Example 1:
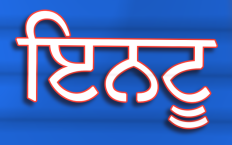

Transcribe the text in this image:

ਇਨਟੂ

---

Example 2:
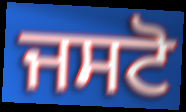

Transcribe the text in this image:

ਜਸਟੋ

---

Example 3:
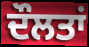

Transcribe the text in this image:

ਦੌਲਤਾਂ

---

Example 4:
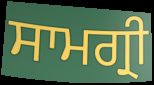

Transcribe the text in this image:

ਸਾਮਗ੍ਰੀ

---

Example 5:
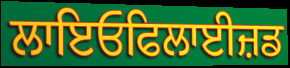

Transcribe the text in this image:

ਲਾਇਓਫਿਲਾਈਜ਼ਡ